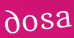
dosa